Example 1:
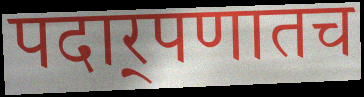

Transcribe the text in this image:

पदार्पणातच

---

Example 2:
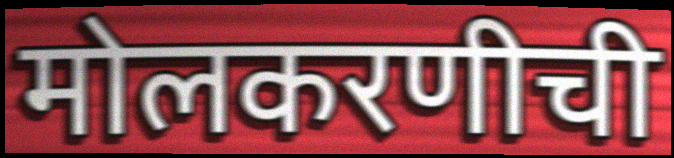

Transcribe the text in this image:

मोलकरणीची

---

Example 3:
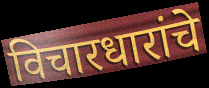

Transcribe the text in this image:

विचारधारांचे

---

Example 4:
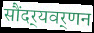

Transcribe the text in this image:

सौंदर्यवर्णन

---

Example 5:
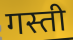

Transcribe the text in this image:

गस्ती